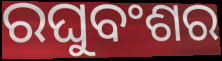
ରଘୁବଂଶର